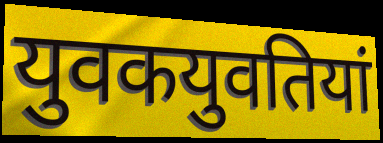
युवकयुवतियां